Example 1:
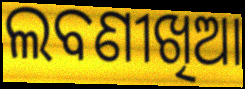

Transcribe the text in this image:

ଲବଣୀଖିଆ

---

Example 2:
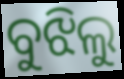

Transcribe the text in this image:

ବୁଝିଲୁ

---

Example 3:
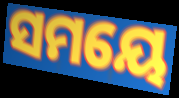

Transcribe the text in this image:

ସମୟେ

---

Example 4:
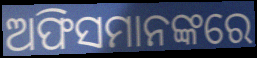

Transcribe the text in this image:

ଅଫିସମାନଙ୍କରେ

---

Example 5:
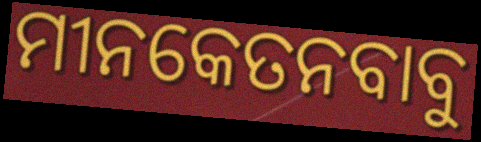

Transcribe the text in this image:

ମୀନକେତନବାବୁ